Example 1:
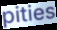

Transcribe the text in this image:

pities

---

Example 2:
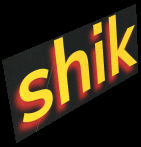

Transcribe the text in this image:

shik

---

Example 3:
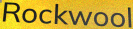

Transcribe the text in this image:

Rockwool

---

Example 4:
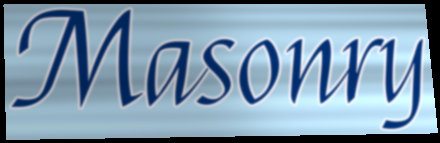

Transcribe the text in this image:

Masonry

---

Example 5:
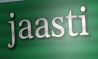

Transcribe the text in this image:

jaasti